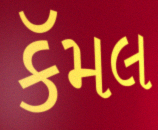
કૅમલ